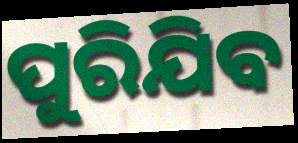
ପୁରିଯିବ